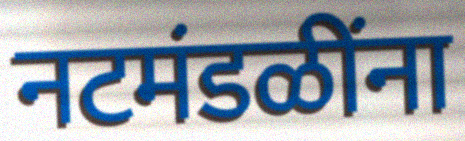
नटमंडळींना